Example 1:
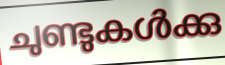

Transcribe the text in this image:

ചുണ്ടുകൾക്കു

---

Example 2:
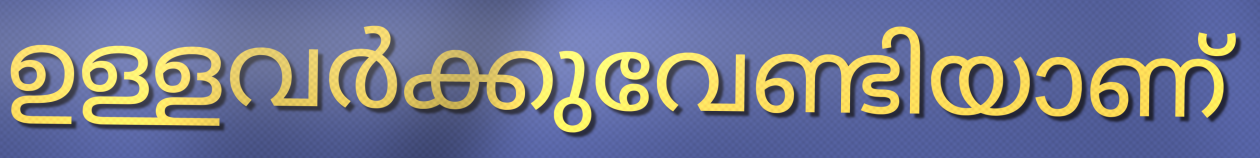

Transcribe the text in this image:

ഉള്ളവർക്കുവേണ്ടിയാണ്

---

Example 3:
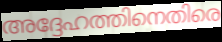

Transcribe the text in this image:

അദ്ദേഹത്തിനെതിരെ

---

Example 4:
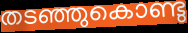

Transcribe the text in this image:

തടഞ്ഞുകൊണ്ടു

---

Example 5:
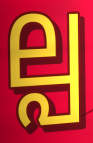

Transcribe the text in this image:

ല്പ